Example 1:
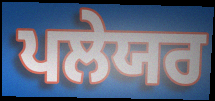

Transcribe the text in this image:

ਪਲੇਯਰ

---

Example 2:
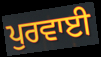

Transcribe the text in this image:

ਪੁਰਵਾਈ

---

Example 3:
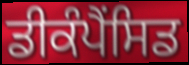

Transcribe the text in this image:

ਡੀਕੰਪੈਂਸਿਡ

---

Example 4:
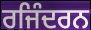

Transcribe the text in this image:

ਰਜਿੰਦਰਨ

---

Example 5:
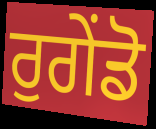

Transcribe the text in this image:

ਰੁਗੇਂਡੋ